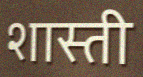
शास्ती